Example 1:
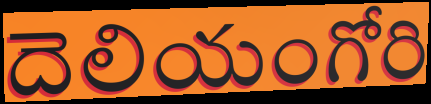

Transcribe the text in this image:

దెలియంగోరి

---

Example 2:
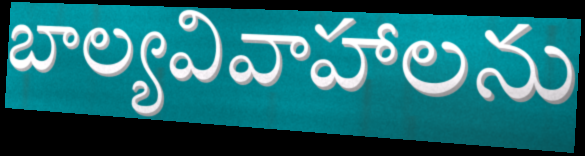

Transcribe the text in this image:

బాల్యవివాహాలను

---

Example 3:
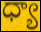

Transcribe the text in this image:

ధ్యా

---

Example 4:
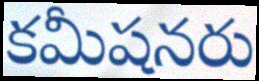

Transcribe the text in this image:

కమీషనరు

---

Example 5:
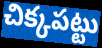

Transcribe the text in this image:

చిక్కపట్టు